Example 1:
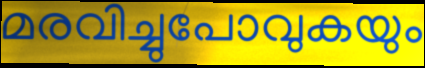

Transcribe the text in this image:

മരവിച്ചുപോവുകയും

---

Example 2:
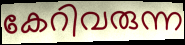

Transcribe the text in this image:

കേറിവരുന്ന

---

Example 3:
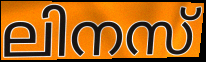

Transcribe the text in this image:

ലിനസ്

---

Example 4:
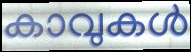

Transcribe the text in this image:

കാവുകൾ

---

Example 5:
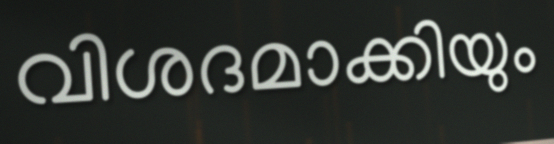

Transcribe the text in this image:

വിശദമാക്കിയും